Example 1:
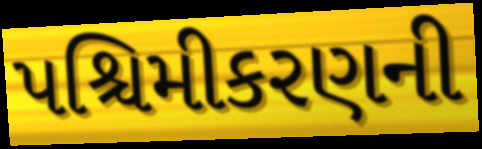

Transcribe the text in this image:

પશ્ચિમીકરણની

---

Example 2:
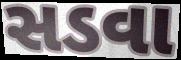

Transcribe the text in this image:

સડવા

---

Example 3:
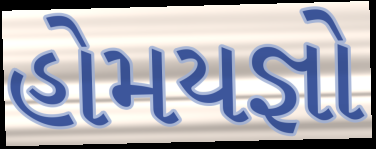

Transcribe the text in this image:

હોમયજ્ઞો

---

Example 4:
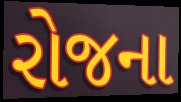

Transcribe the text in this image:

રોજના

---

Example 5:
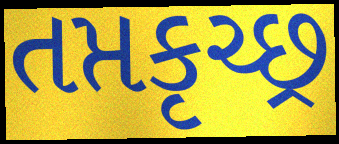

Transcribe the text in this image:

તપ્તકૃચ્છ્ર